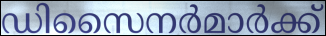
ഡിസൈനർമാർക്ക്